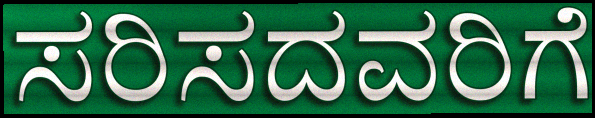
ಸರಿಸದವರಿಗೆ